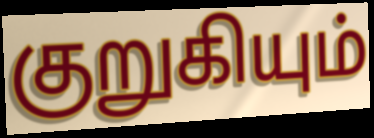
குறுகியும்